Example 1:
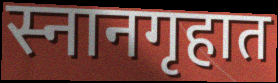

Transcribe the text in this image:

स्नानगृहात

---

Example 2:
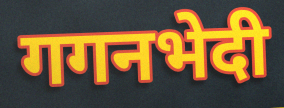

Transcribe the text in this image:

गगनभेदी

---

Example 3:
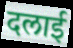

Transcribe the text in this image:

दलाई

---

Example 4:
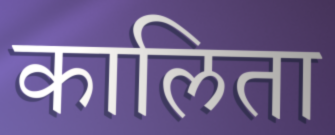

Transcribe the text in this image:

कालिता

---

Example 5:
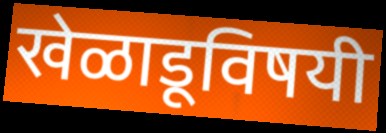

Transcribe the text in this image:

खेळाडूविषयी